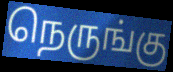
நெருங்கு